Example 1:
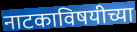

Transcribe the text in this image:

नाटकाविषयीच्या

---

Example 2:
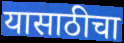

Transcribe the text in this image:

यासाठीचा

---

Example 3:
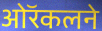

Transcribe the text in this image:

ओरॅकलने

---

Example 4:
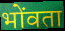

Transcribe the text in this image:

भोंवता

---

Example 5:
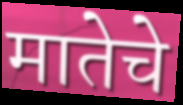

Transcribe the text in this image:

मातेचे